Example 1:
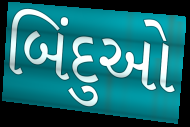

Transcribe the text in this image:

બિંદુઓ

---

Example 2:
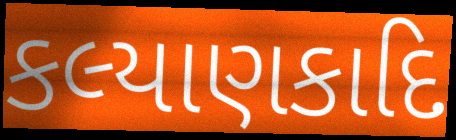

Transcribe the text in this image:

કલ્યાણકાદિ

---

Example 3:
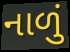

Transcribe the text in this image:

નાળું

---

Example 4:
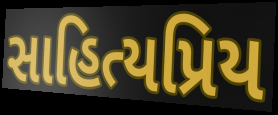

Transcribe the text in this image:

સાહિત્યપ્રિય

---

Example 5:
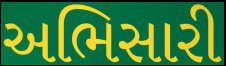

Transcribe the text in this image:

અભિસારી